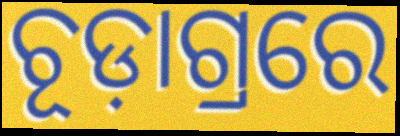
ଚୂଡ଼ାଗ୍ରରେ